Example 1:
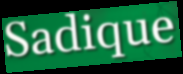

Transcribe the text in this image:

Sadique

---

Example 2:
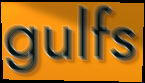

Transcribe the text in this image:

gulfs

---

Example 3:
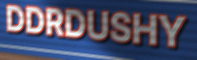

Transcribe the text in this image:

DDRDUSHY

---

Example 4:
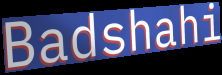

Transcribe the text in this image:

Badshahi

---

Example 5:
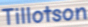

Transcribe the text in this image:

Tillotson